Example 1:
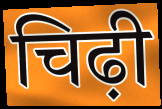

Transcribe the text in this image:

चिढ़ी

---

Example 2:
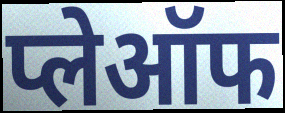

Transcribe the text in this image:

प्लेऑफ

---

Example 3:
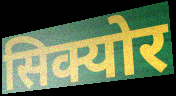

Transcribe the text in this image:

सिक्योर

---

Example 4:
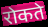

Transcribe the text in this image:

रोकते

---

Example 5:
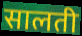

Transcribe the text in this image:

सालती